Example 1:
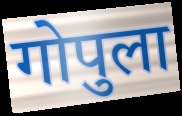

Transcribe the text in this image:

गोपुला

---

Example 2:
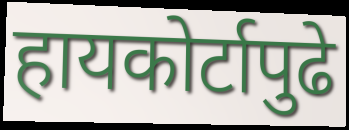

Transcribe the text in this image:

हायकोर्टापुढे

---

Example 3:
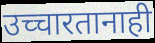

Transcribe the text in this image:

उच्चारतानाही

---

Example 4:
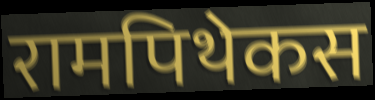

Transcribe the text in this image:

रामपिथेकस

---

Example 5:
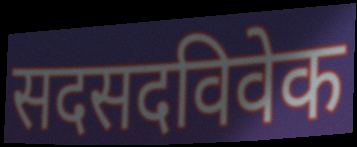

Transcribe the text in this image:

सदसदविवेक